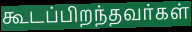
கூடப்பிறந்தவர்கள்